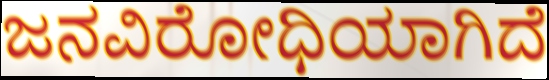
ಜನವಿರೋಧಿಯಾಗಿದೆ